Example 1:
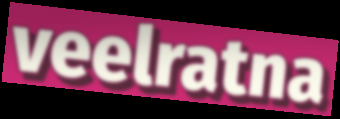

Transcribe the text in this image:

veelratna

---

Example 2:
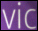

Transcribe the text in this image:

vic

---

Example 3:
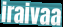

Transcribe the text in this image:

iraivaa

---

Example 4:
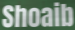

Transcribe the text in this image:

Shoaib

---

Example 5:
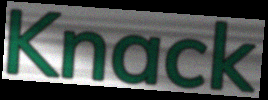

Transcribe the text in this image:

Knack